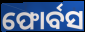
ଫୋର୍ବସ